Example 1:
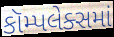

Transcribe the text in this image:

કૉમ્પલેક્સમાં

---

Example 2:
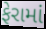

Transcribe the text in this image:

ફેરામાં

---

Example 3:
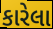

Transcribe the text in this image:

કારેલા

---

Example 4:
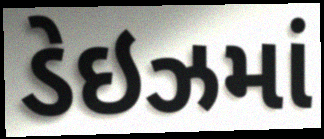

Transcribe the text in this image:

ડેઇઝમાં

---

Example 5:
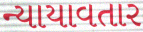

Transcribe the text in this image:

ન્યાયાવતાર